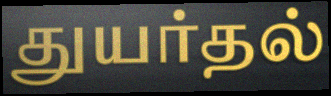
துயர்தல்